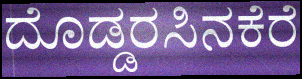
ದೊಡ್ಡರಸಿನಕೆರೆ